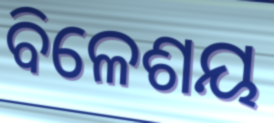
ବିଳେଶୟ